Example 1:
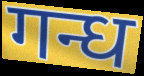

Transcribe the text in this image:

गन्ध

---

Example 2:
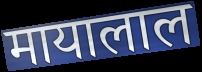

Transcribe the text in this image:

मायालाल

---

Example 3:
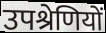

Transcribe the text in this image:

उपश्रेणियों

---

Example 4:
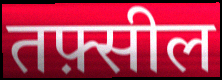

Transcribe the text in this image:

तफ़्सील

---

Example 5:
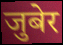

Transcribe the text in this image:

जुबेर